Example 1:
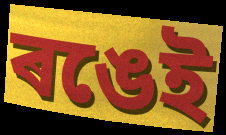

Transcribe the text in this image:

ৰঙেই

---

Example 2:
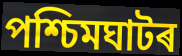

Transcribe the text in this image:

পশ্চিমঘাটৰ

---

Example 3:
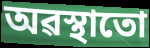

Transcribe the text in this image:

অৱস্থাতো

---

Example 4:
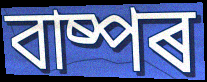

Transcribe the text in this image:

বাষ্পৰ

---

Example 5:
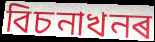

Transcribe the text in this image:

বিচনাখনৰ